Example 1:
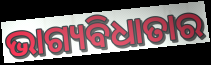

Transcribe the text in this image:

ଭାଗ୍ୟବିଧାତାର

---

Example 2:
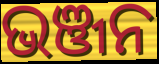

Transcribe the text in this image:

ଭଞ୍ଜନ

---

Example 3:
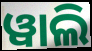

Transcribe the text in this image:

ୱାଲି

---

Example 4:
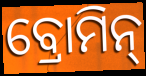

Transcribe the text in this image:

ବ୍ରୋମିନ୍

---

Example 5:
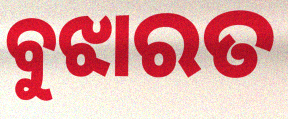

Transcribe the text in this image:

ବୁଝାରତ